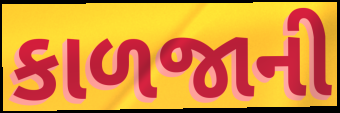
કાળજાની